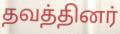
தவத்தினர்